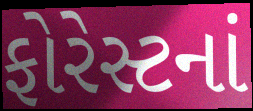
ફોરેસ્ટનાં